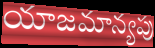
యాజమాన్యపు